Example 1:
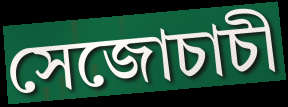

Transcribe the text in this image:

সেজোচাচী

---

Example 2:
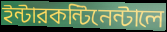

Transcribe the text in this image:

ইন্টারকন্টিনেন্টালে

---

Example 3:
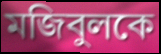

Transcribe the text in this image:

মজিবুলকে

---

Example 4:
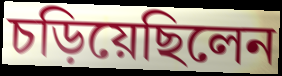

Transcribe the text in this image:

চড়িয়েছিলেন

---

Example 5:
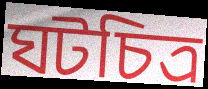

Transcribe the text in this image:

ঘটচিত্র